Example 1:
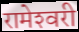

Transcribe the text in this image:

रामेश्वरी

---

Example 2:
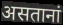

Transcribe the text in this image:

असतानां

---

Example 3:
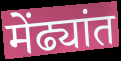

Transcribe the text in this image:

मेंढ्यांत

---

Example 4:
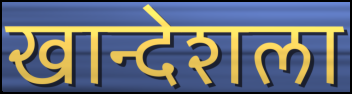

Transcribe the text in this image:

खान्देशला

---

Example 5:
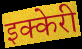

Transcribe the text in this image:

इक्केरी